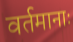
वर्तमानाः